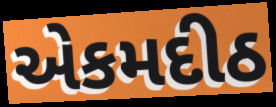
એકમદીઠ